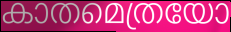
കാതമെത്രയോ